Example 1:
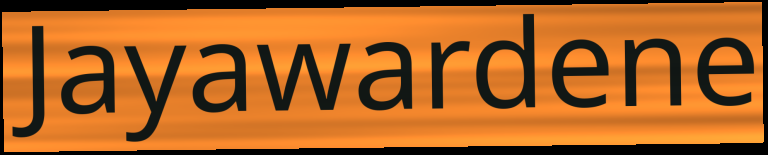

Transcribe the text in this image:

Jayawardene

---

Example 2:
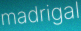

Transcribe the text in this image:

madrigal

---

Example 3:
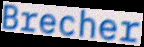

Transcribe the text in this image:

Brecher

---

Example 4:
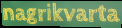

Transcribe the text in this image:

nagrikvarta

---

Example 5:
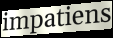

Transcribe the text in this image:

impatiens